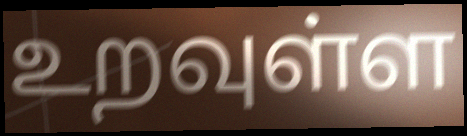
உறவுள்ள